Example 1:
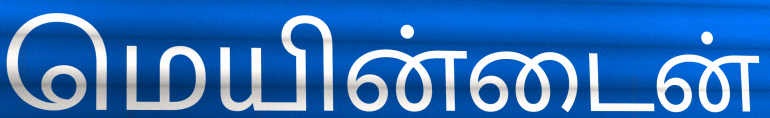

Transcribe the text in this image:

மெயின்டைன்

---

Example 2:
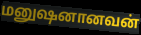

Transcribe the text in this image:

மனுஷனானவன்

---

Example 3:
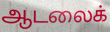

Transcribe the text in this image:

ஆடலைக்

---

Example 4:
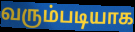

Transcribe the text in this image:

வரும்படியாக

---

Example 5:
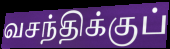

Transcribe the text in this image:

வசந்திக்குப்